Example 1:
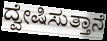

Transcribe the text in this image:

ದ್ವೇಷಿಸುತ್ತಾನೆ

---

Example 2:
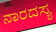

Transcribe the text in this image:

ನಾರದಸ್ಯ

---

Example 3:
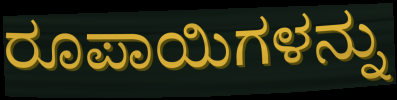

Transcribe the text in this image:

ರೂಪಾಯಿಗಳನ್ನು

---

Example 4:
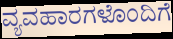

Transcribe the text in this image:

ವ್ಯವಹಾರಗಳೊಂದಿಗೆ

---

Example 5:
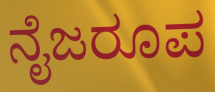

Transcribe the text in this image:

ನೈಜರೂಪ